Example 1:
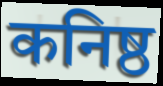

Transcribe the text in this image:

कनिष्ठ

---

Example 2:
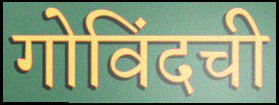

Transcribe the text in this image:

गोविंदची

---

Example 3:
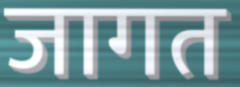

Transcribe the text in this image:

जागत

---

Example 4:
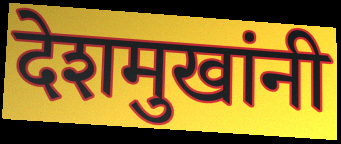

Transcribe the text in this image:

देशमुखांनी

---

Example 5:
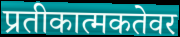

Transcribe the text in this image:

प्रतीकात्मकतेवर